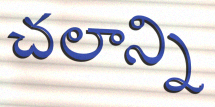
చలాన్ని